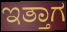
ಇತ್ತಾಗ